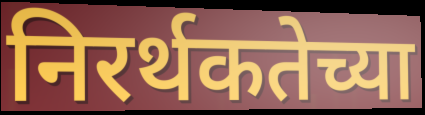
निरर्थकतेच्या